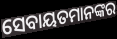
ସେବାୟତମାନଙ୍କର